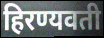
हिरण्यवती